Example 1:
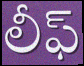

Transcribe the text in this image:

లీఫ్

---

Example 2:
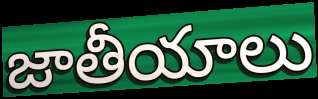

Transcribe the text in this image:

జాతీయాలు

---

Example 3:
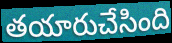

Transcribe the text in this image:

తయారుచేసింది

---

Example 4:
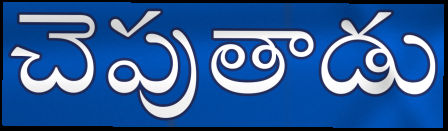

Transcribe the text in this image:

చెపుతాడు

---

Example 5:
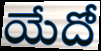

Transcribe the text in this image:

యేదో